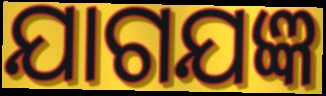
ଯାଗଯଜ୍ଞ